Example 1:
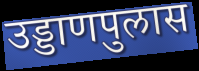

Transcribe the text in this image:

उड्डाणपुलास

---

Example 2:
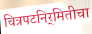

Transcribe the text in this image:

चित्रपटनिर्मितीचा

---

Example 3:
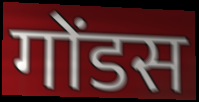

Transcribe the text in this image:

गोंडस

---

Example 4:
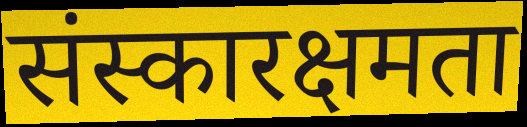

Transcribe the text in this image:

संस्कारक्षमता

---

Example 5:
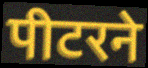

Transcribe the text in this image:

पीटरने